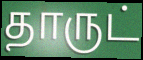
தாருட்